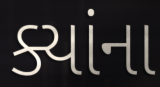
ક્યાંના